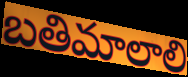
బతిమాలాలి